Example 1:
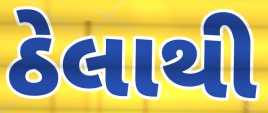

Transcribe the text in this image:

ઠેલાથી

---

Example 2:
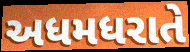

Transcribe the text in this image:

અધમધરાતે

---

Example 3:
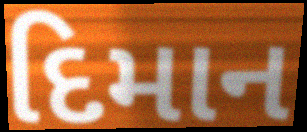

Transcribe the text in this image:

દિમાન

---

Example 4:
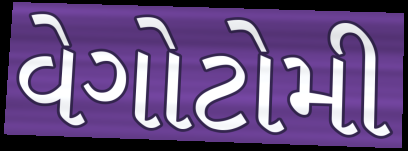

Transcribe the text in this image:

વેગોટોમી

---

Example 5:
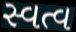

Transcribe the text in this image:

સ્વત્વ